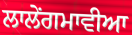
ਲਾਲੇਂਗਮਾਵੀਆ